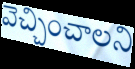
వెచ్చించాలని